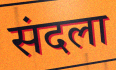
संदला